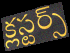
క్లస్టర్స్